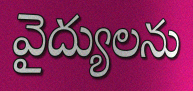
వైద్యులను